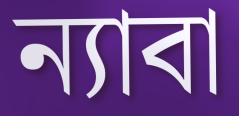
ন্যাবা